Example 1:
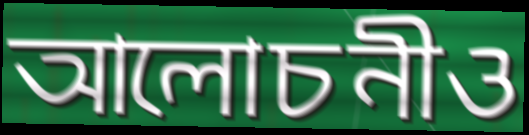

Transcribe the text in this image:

আলোচনীও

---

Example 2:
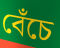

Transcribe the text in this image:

বেঁচে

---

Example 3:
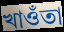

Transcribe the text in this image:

খাওঁতা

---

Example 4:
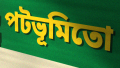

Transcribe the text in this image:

পটভূমিতো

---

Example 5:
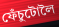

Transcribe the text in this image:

ফেঁচুটোলৈ